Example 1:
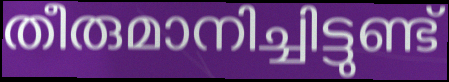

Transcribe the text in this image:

തീരുമാനിച്ചിട്ടുണ്ട്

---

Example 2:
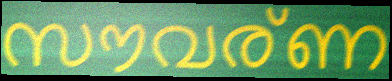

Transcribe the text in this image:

സൗവര്ണ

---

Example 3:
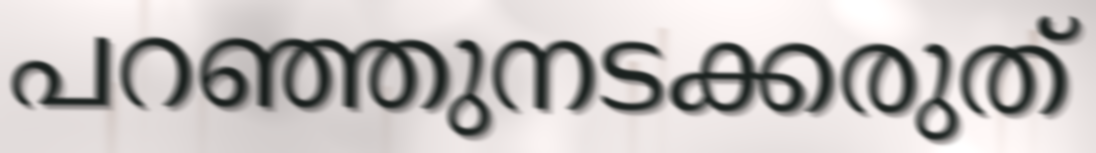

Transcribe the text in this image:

പറഞ്ഞുനടക്കരുത്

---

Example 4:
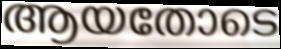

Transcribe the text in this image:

ആയതോടെ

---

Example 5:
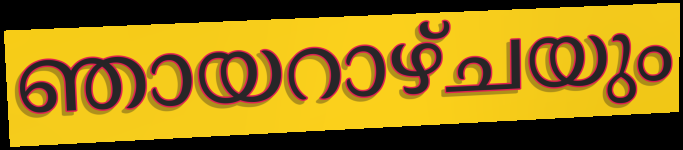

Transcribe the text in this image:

ഞായറാഴ്ചയും